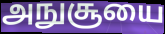
அநுசூயை